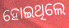
ହୋଇଥିଲେ